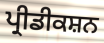
ਪ੍ਰੀਡੀਕਸ਼ਨ